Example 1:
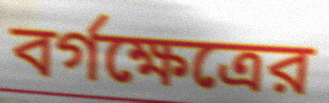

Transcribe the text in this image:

বর্গক্ষেত্রের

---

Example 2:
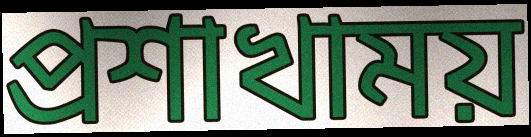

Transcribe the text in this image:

প্রশাখাময়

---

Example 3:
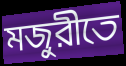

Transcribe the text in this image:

মজুরীতে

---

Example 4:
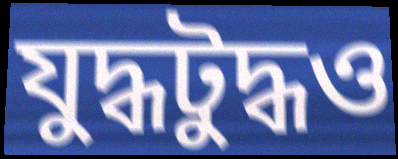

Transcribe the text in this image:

যুদ্ধটুদ্ধও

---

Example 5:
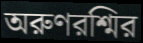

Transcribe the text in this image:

অরুণরশ্মির